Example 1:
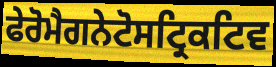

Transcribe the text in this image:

ਫੇਰੋਮੈਗਨੇਟੋਸਟ੍ਰਿਕਟਿਵ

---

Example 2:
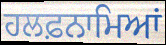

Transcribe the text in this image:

ਹਲਫ਼ਨਾਮਿਆਂ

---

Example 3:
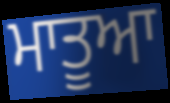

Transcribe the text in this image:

ਮਾਤੂਆ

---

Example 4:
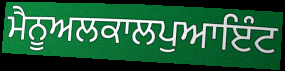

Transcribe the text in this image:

ਮੈਨੂਅਲਕਾਲਪੁਆਇੰਟ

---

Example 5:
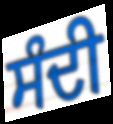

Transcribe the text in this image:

ਸੰਦੀ